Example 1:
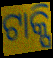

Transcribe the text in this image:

ଟାକ୍ସି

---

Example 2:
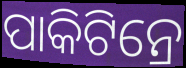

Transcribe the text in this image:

ପାକିଟିନ୍ରେ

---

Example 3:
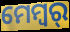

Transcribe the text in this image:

ମେମ୍ବର୍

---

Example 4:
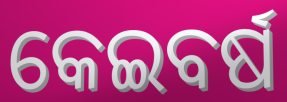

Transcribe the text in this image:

କେଇବର୍ଷ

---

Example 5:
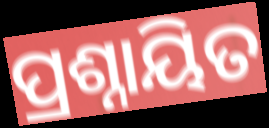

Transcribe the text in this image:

ପ୍ରଶ୍ନାୟିତ